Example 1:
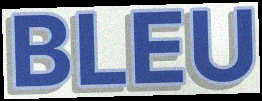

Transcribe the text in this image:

BLEU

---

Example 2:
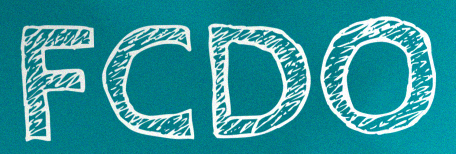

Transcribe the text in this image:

FCDO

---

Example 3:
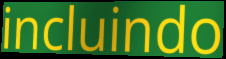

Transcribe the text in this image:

incluindo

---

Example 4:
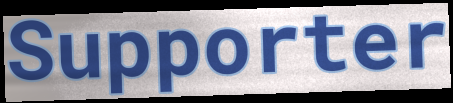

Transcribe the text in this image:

Supporter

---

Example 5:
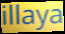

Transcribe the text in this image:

illaya